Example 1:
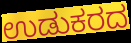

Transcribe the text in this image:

ಉಡುಕರದ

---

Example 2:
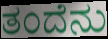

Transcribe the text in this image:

ತಂದೆನು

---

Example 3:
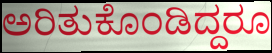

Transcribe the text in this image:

ಅರಿತುಕೊಂಡಿದ್ದರೂ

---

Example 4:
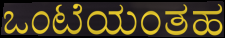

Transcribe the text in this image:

ಒಂಟೆಯಂತಹ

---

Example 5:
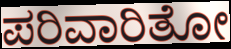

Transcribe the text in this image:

ಪರಿವಾರಿತೋ